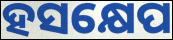
ହସକ୍ଷେପ